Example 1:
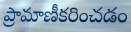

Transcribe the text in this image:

ప్రామాణీకరించడం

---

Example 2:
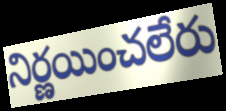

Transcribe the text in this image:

నిర్ణయించలేరు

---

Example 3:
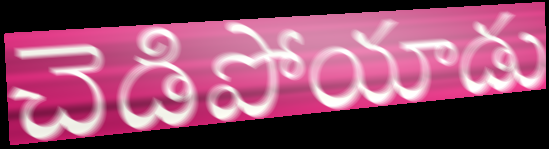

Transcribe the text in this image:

చెడిపోయాడు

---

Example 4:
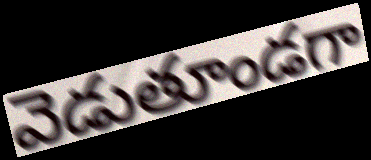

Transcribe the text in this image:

వెడుతూండగా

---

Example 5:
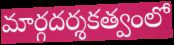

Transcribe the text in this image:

మార్గదర్శకత్వంలో